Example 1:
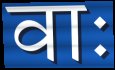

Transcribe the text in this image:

वाः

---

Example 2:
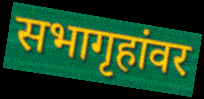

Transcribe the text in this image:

सभागृहांवर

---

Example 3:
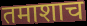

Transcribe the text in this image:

तमाशाच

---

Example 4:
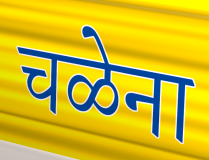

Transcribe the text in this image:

चळेना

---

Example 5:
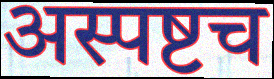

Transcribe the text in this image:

अस्पष्टच